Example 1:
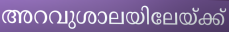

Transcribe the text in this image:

അറവുശാലയിലേയ്ക്ക്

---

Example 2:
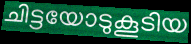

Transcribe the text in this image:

ചിട്ടയോടുകൂടിയ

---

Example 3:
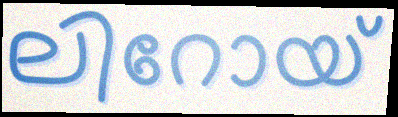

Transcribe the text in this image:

ലിറോയ്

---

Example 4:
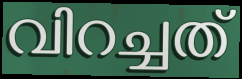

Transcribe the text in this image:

വിറച്ചത്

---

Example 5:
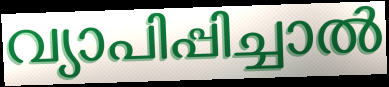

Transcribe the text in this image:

വ്യാപിപ്പിച്ചാൽ